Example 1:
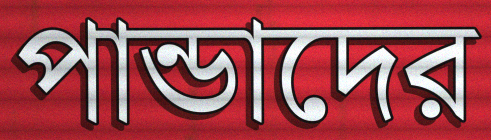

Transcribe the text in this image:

পান্ডাদের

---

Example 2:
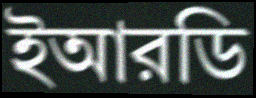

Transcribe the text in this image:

ইআরডি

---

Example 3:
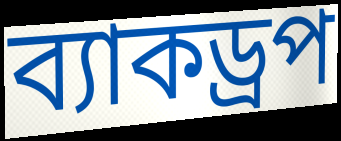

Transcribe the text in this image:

ব্যাকড্রপ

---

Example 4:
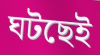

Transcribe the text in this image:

ঘটছেই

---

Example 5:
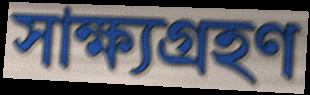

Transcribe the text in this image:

সাক্ষ্যগ্রহণ